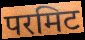
परमिट